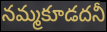
నమ్మకూడదనీ